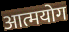
आत्मयोग